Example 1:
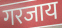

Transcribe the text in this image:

गरजाय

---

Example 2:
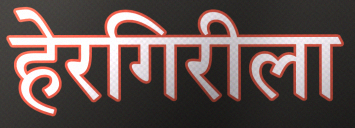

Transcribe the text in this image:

हेरगिरीला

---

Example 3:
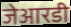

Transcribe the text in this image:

जेआरडी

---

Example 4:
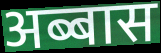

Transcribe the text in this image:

अब्बास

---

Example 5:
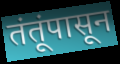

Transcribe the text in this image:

तंतूंपासून